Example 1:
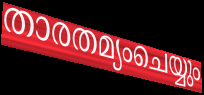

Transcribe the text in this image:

താരതമ്യംചെയ്യും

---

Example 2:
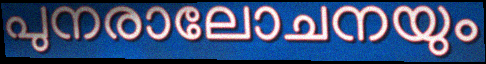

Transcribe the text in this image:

പുനരാലോചനയും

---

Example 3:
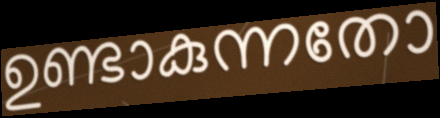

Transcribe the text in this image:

ഉണ്ടാകുന്നതോ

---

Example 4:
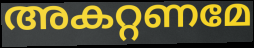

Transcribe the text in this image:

അകറ്റണമേ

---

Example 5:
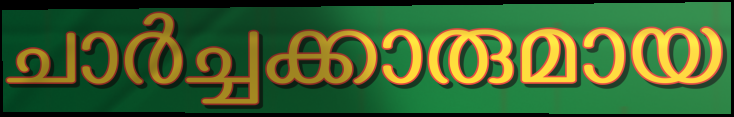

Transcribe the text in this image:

ചാർച്ചക്കാരുമായ